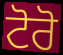
ਟੋਰੋ